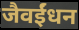
जैवईंधन